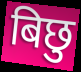
बिछु